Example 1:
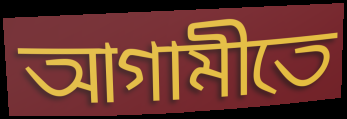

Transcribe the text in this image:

আগামীতে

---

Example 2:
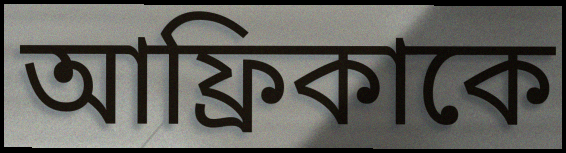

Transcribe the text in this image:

আফ্রিকাকে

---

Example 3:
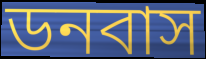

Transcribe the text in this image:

ডনবাস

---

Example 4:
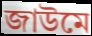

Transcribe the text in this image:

জাউমে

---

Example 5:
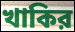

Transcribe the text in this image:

খাকির